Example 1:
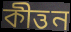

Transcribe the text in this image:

কীত্তন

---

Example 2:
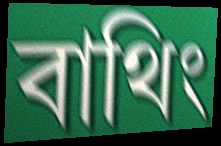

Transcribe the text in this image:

বাথিং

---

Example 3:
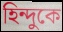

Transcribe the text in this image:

হিন্দুকে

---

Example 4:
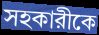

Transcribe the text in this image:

সহকারীকে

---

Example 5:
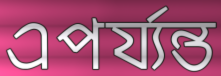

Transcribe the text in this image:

এপর্য্যন্ত